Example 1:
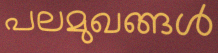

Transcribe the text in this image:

പലമുഖങ്ങൾ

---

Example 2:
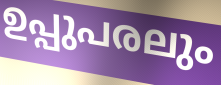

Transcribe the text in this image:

ഉപ്പുപരലും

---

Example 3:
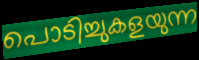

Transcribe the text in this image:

പൊടിച്ചുകളയുന്ന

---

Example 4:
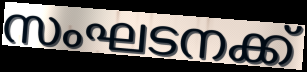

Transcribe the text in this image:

സംഘടനക്ക്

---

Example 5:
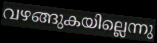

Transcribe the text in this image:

വഴങ്ങുകയില്ലെന്നു